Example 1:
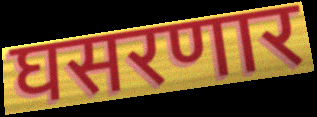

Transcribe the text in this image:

घसरणार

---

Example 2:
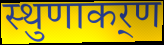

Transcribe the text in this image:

स्थुणाकर्ण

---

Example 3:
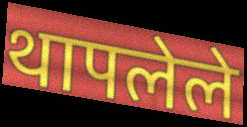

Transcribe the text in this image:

थापलेले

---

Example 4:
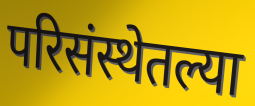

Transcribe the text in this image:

परिसंस्थेतल्या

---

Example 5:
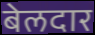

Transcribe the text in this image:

बेलदार